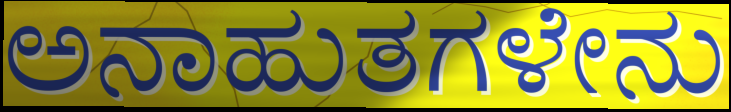
ಅನಾಹುತಗಳೇನು